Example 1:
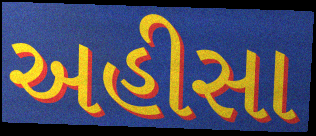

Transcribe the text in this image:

અહીસા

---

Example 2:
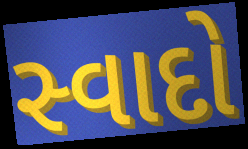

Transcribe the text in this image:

સ્વાદો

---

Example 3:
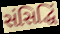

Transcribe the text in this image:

સંસિદ્ધિં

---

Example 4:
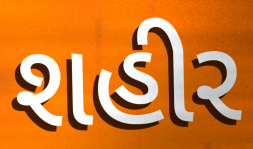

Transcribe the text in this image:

શહીર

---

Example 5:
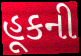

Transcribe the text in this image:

હૂકની